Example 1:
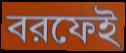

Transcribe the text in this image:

বরফেই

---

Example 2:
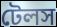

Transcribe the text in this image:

টেলস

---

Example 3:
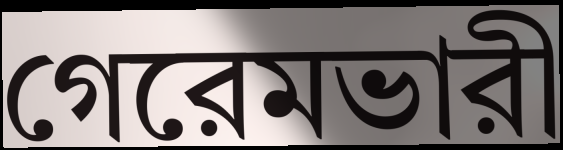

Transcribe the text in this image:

গেরেমভারী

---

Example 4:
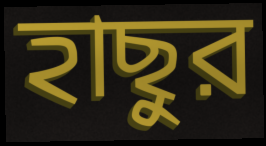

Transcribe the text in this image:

হাছুর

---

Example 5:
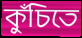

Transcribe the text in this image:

কুঁচিতে